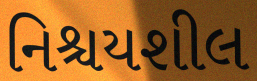
નિશ્ચયશીલ